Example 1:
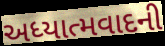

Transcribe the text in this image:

અધ્યાત્મવાદની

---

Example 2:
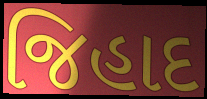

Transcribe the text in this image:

જિહાદ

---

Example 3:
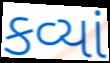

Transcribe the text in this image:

કવ્યાં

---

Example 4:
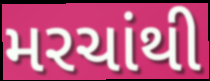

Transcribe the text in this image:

મરચાંથી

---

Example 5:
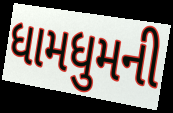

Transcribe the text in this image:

ધામધુમની